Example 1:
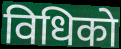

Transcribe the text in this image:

विधिको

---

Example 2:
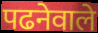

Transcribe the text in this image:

पढनेवाले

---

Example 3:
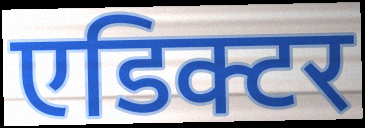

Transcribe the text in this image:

एडिक्टर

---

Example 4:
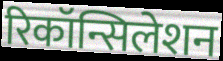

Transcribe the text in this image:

रिकॉन्सिलेशन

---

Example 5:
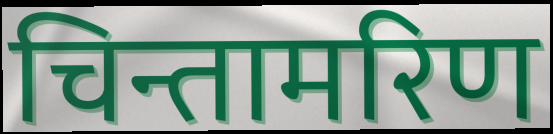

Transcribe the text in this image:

चिन्तामरिण